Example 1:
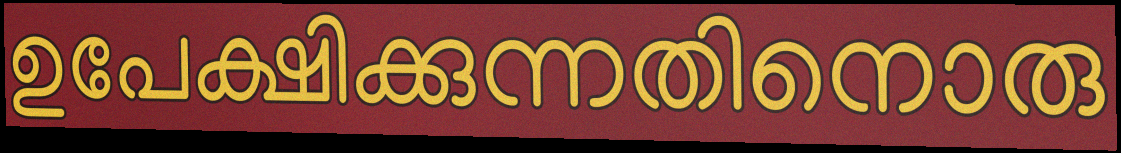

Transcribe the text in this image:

ഉപേക്ഷിക്കുന്നതിനൊരു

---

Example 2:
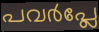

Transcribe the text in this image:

പവർപ്ലേ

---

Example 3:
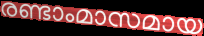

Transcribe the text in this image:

രണ്ടാംമാസമായ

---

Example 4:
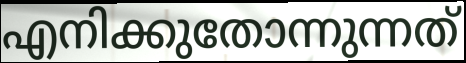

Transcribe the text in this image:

എനിക്കുതോന്നുന്നത്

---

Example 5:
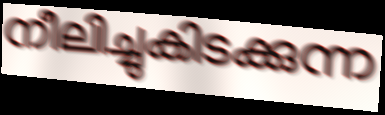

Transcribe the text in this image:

നീലിച്ചുകിടക്കുന്ന